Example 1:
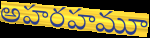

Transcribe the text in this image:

అహరహమూ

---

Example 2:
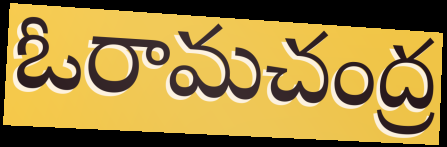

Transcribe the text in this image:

ఓరామచంద్ర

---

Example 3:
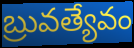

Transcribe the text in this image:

బ్రువత్యేవం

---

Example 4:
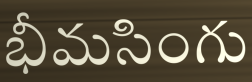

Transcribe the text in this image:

భీమసింగు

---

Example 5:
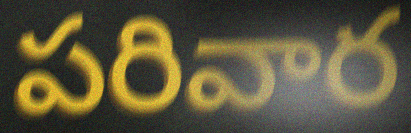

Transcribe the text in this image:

పరివార